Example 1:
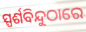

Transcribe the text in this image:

ସ୍ପର୍ଶବିନ୍ଦୁଠାରେ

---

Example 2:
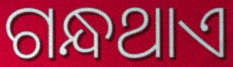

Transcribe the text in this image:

ଗନ୍ଧଥାଏ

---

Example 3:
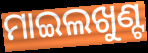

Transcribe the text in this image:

ମାଇଲଖୁଣ୍ଟ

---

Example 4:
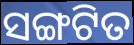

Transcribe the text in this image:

ସଙ୍ଗଟିତ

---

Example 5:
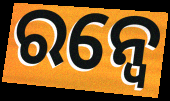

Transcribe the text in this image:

ରନ୍ୱେ